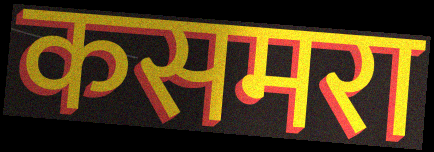
कसमरा